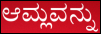
ಆಮ್ಲವನ್ನು